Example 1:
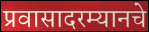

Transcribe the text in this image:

प्रवासादरम्यानचे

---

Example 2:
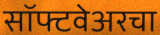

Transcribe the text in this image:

सॉफ्टवेअरचा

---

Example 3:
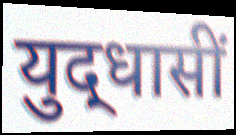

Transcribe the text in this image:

युद्धासीं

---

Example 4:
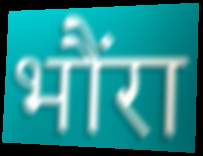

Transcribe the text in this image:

भौंरा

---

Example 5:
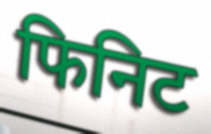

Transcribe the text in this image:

फिनिट